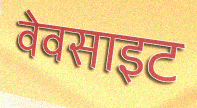
वेवसाइट